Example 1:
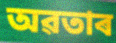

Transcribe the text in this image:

অৱতাৰ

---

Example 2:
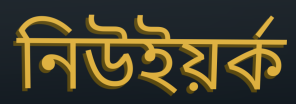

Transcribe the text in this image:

নিউইয়ৰ্ক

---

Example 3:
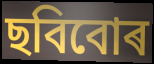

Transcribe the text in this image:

ছবিবোৰ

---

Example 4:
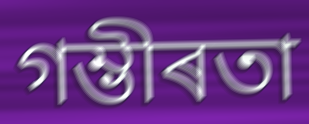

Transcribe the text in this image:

গম্ভীৰতা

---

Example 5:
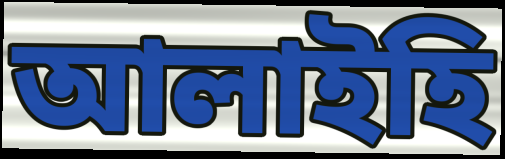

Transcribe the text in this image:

আলাইহি